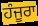
ਹੰਜੂਰਾ